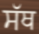
ਸੱਥ